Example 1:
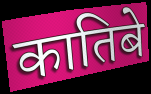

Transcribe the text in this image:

कातिबे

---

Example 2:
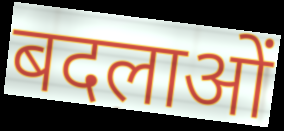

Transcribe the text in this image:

बदलाओं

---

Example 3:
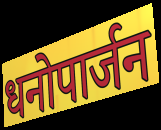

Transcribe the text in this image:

धनोपार्जन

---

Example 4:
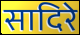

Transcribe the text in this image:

सादिरे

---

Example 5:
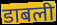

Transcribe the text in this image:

डाबली